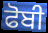
ਫੋਬੀ